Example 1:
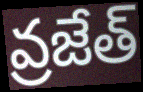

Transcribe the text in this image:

వ్రజేత్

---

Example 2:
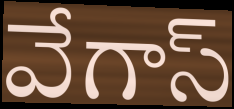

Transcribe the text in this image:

వేగాస్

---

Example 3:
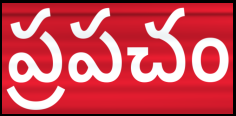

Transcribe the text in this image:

ప్రపచం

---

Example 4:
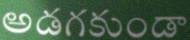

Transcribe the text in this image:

అడగకుండా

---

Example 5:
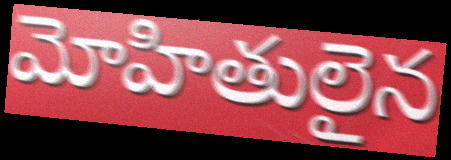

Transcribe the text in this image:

మోహితులైన